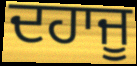
ਦਹਾਜੂ